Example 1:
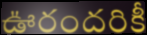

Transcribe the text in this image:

ఊరందరికీ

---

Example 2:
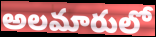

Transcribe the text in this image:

అలమారులో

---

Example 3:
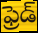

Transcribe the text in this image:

ఫ్రెడ్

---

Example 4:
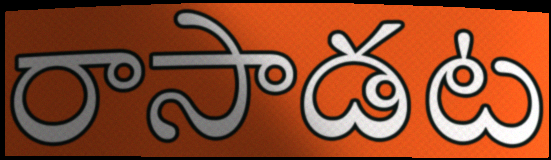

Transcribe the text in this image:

రాసాడట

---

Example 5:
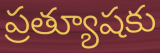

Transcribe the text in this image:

ప్రత్యూషకు